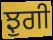
ਝੁਗੀ